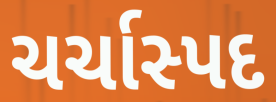
ચર્ચાસ્પદ